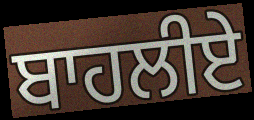
ਬਾਹਲੀਏ